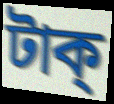
টাক্